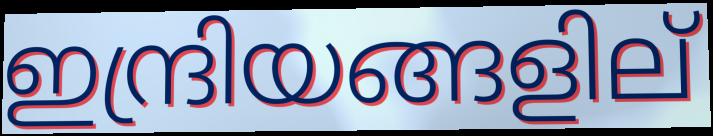
ഇന്ദ്രിയങ്ങളില്